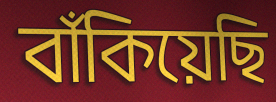
বাঁকিয়েছি